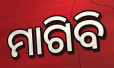
ମାଗିବି